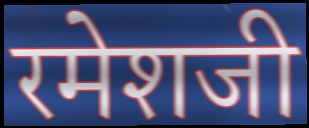
रमेशजी